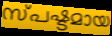
സ്പഷ്ടമായ